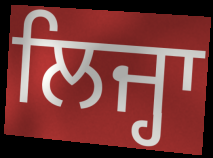
ਲਿਜ੍ਹਾ